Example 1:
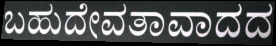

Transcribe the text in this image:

ಬಹುದೇವತಾವಾದದ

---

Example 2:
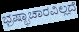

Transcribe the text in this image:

ಭ್ರಷ್ಟಾಚಾರವಿಲ್ಲದೆ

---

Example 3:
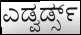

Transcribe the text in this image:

ಎಡ್ವರ್ಡ್ಸ್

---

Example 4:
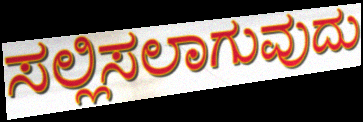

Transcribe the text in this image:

ಸಲ್ಲಿಸಲಾಗುವುದು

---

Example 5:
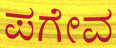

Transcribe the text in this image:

ಪಗೇವ